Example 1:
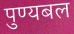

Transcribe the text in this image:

पुण्यबल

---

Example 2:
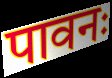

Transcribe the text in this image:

पावनः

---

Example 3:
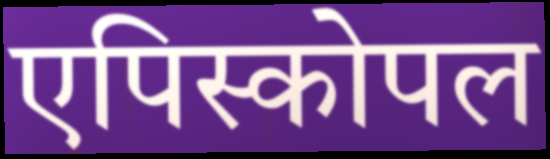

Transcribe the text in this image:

एपिस्कोपल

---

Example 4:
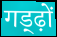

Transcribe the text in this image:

गड्‌ढ़ों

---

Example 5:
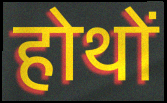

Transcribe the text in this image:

होथों